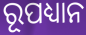
ରୂପଧ୍ୟାନ